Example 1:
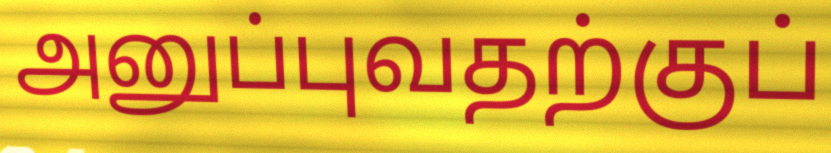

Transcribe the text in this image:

அனுப்புவதற்குப்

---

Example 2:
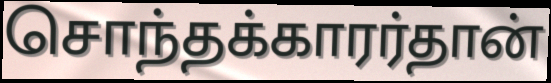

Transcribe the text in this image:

சொந்தக்காரர்தான்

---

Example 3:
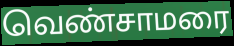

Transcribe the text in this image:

வெண்சாமரை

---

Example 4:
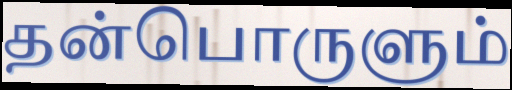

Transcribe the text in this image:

தன்பொருளும்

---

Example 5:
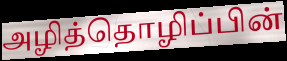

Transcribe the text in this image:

அழித்தொழிப்பின்